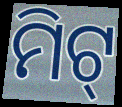
ମିଟ୍